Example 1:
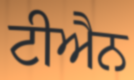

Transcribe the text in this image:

ਟੀਐਨ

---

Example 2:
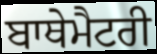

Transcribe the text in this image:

ਬਾਥੇਮੈਟਰੀ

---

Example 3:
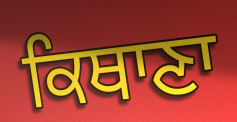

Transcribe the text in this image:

ਕਿਥਾਣਾ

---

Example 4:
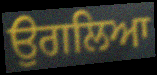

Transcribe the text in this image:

ਉਗਲਿਆ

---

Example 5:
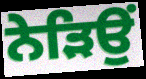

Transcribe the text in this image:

ਨੇੜਿਉਂ